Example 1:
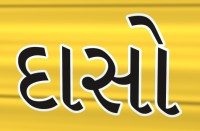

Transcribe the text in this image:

દાસો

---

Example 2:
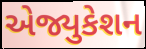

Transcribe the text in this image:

એજ્યુકેશન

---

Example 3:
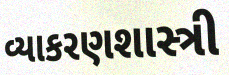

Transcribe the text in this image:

વ્યાકરણશાસ્ત્રી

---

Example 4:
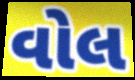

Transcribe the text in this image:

વોલ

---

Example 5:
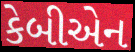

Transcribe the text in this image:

કેબીએન